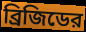
ব্রিজিডের